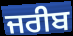
ਜਰੀਬ